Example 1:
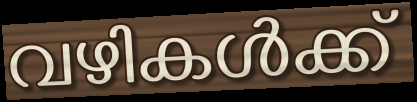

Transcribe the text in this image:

വഴികൾക്ക്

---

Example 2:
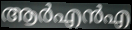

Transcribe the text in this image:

ആർഎൻഎ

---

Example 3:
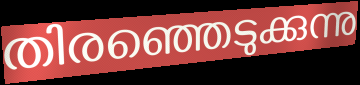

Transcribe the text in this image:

തിരഞ്ഞെടുക്കുന്നു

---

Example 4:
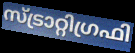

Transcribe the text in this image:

സ്ട്രാറ്റിഗ്രഫി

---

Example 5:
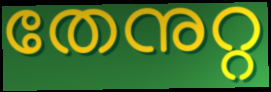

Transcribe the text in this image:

തേനുറ്റ